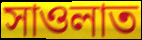
সাওলাত